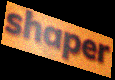
shaper